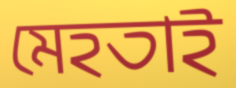
মেহতাই